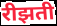
रीझती